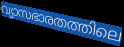
വ്യാസഭാരതത്തിലെ